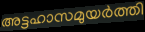
അട്ടഹാസമുയർത്തി